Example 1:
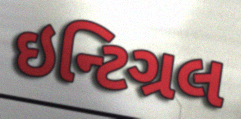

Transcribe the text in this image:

ઇન્ટિગ્રલ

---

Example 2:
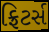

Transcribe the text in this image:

ફ્રિટર્સ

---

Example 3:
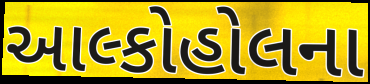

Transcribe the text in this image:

આલ્કોહોલના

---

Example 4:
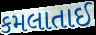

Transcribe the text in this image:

કમલાતાઈ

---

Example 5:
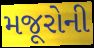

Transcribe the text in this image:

મજૂરોની